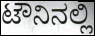
ಟೌನಿನಲ್ಲಿ